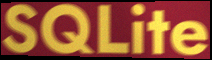
SQLite